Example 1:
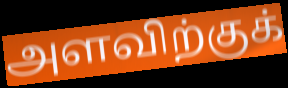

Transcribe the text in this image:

அளவிற்குக்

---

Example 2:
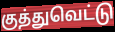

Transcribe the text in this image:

குத்துவெட்டு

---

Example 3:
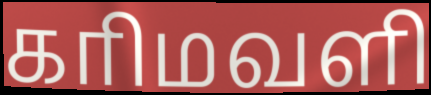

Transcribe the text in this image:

கரிமவளி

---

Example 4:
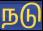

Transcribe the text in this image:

நடு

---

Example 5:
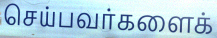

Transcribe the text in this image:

செய்பவர்களைக்